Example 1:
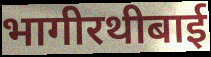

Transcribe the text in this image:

भागीरथीबाई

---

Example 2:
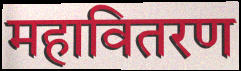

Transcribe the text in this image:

महावितरण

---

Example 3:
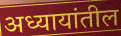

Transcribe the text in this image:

अध्यायांतील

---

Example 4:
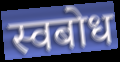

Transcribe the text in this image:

स्वबोध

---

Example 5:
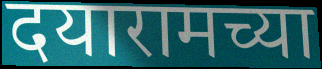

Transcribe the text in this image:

दयारामच्या